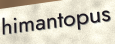
himantopus